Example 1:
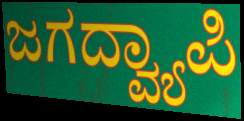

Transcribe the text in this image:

ಜಗದ್ವ್ಯಾಪಿ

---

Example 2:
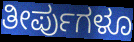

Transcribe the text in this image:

ತೀರ್ಪುಗಳೂ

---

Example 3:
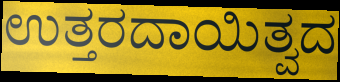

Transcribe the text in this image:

ಉತ್ತರದಾಯಿತ್ವದ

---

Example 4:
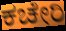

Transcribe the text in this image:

ಕಚೇರಿ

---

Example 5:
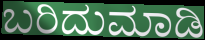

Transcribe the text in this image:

ಬರಿದುಮಾಡಿ